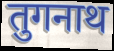
तुगनाथ